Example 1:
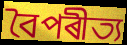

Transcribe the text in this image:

বৈপৰীত্য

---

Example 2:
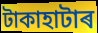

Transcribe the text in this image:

টাকাহাটাৰ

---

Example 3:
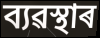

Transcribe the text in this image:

ব্যৱস্থাৰ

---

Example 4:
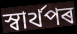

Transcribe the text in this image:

স্বাৰ্থপৰ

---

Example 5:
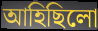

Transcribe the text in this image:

আহিছিলো